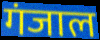
गंजाल